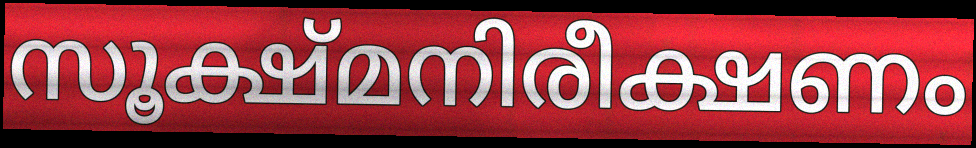
സൂക്ഷ്മനിരീക്ഷണം